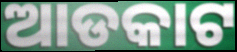
ଆଡକାଟ